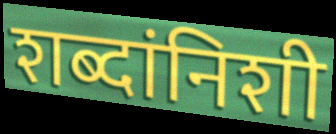
शब्दांनिशी